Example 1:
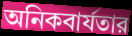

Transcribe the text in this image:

অনিকবার্যতার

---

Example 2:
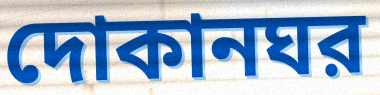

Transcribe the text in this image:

দোকানঘর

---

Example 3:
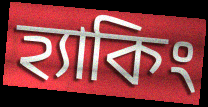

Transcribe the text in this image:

হ্যাকিং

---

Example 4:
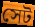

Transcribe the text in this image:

সেট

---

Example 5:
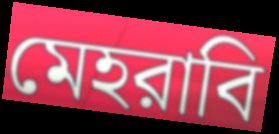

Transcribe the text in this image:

মেহরাবি